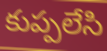
కుప్పలేసి